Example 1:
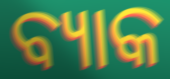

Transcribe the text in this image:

ବ୍ୟାକ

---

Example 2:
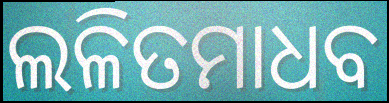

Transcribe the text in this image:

ଲଳିତମାଧବ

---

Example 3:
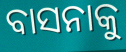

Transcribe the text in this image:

ବାସନାକୁ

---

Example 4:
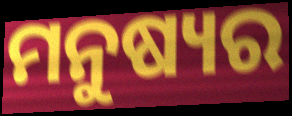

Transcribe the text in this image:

ମନୁଷ୍ୟର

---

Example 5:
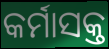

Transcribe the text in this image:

କର୍ମାସକ୍ତ